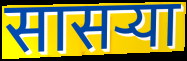
सासर्‍या